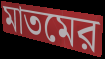
মাতমের